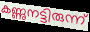
കണ്ണുനട്ടിരുന്ന്